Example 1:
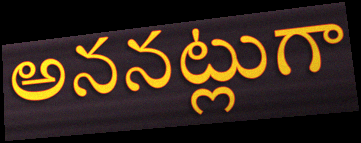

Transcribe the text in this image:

అననట్లుగా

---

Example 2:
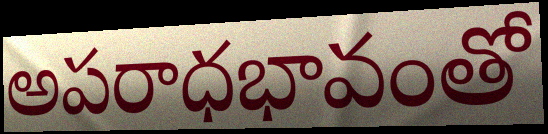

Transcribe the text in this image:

అపరాధభావంతో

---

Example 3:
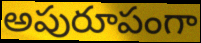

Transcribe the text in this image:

అపురూపంగా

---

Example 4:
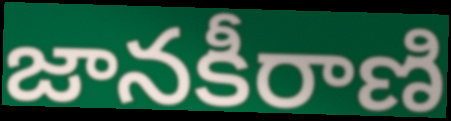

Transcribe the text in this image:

జానకీరాణి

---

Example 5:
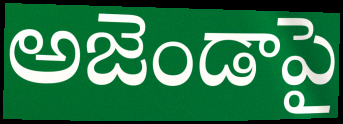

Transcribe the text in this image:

అజెండాపై